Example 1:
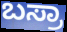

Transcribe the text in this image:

ಬಸ್ರಾ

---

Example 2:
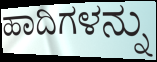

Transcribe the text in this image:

ಹಾದಿಗಳನ್ನು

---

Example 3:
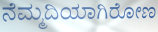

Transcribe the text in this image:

ನೆಮ್ಮದಿಯಾಗಿರೋಣ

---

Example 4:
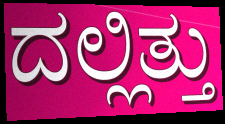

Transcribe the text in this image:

ದಲ್ಲಿತ್ತು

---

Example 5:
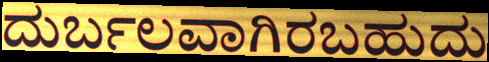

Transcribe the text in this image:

ದುರ್ಬಲವಾಗಿರಬಹುದು